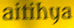
aitihya